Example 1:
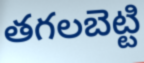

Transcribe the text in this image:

తగలబెట్టి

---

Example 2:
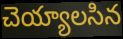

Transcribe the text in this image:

చెయ్యాలసిన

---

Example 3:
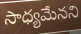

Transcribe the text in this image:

సాధ్యమేనని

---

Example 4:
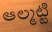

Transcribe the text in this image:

ఆల్మట్టి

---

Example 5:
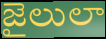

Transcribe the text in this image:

జైలులా